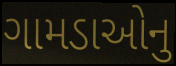
ગામડાઓનુ